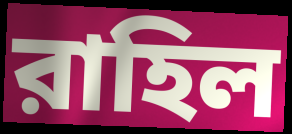
রাহিল